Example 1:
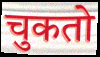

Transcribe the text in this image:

चुकतो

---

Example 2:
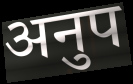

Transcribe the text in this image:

अनुप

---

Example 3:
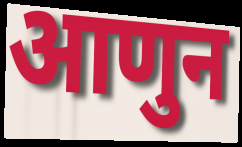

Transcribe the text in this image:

आणुन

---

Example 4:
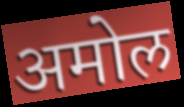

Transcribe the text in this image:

अमोल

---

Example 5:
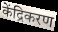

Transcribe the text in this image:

केंद्रिकरण